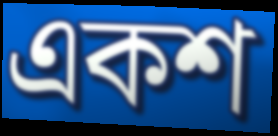
একশ